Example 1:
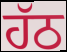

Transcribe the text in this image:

ਹੱਠ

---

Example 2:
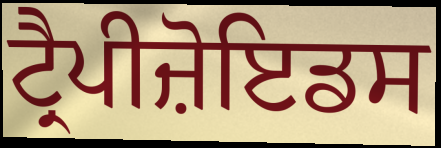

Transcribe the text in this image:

ਟ੍ਰੈਪੀਜ਼ੋਇਡਸ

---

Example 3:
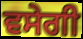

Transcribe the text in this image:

ਵਸੇਗੀ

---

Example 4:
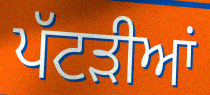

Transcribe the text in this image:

ਪੱਟੜੀਆਂ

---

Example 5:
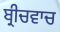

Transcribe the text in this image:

ਬ੍ਰੀਚਵਾਚ